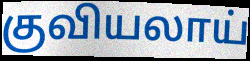
குவியலாய்